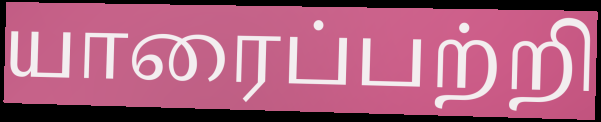
யாரைப்பற்றி